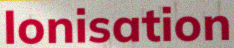
Ionisation